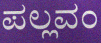
ಪಲ್ಲವಂ